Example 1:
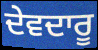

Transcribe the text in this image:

ਦੇਵਦਾਰੂ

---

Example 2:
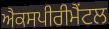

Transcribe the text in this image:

ਐਕਸਪੀਰੀਮੈਂਟਲ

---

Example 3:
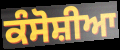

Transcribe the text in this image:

ਕੰਸੋਸ਼ੀਆ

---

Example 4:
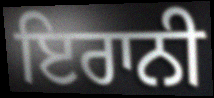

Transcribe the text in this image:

ਇਰਾਨੀ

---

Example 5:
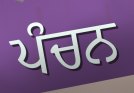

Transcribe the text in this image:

ਪੰਚਨ